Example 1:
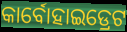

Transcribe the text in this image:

କାର୍ବୋହାଇଡ୍ରେଟ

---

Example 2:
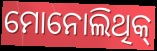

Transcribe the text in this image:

ମୋନୋଲିଥିକ୍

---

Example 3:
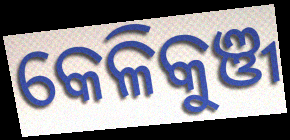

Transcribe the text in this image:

କେଳିକୁଞ୍ଜ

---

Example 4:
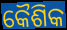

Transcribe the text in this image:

କୈଶିକ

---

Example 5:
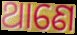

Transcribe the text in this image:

ଥାଣେ